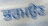
ਭਰਮਉਣ